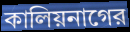
কালিয়নাগের